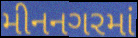
મીનનગરમાં